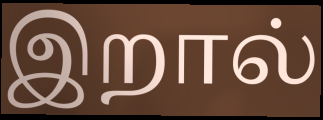
இறால்